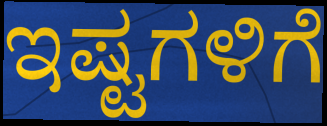
ಇಷ್ಟಗಳಿಗೆ